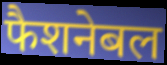
फैशनेबल